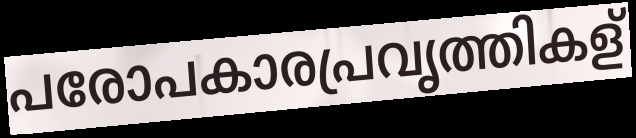
പരോപകാരപ്രവൃത്തികള്